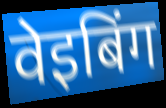
वेइबिंग